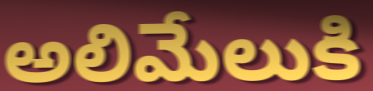
అలిమేలుకి